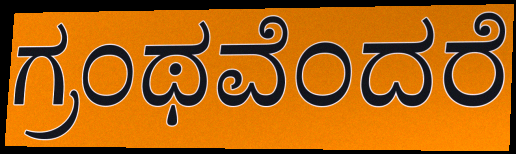
ಗ್ರಂಥವೆಂದರೆ